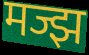
मज्झ